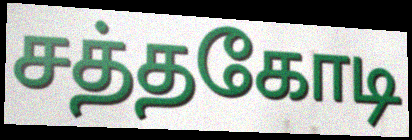
சத்தகோடி